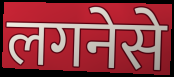
लगनेसे